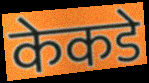
केकडे